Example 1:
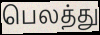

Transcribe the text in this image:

பெலத்து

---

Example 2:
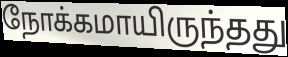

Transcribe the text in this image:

நோக்கமாயிருந்தது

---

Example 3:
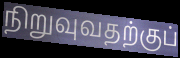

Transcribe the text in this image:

நிறுவுவதற்குப்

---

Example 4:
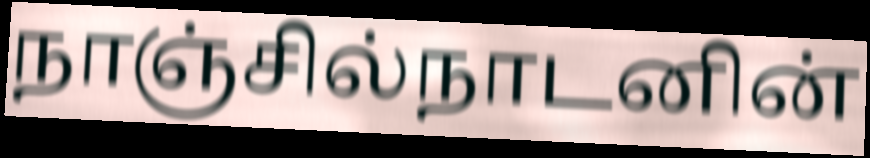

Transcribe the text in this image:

நாஞ்சில்நாடனின்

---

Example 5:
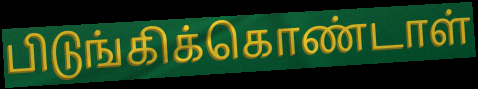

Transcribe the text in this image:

பிடுங்கிக்கொண்டாள்